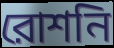
রোশনি